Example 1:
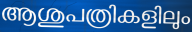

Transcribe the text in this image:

ആശുപത്രികളിലും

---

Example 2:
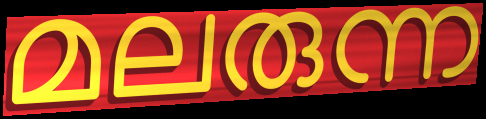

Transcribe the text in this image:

മലരുന്ന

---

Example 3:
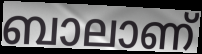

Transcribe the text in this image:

ബാലാണ്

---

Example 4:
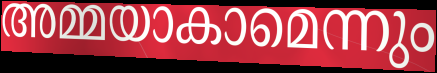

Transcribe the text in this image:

അമ്മയാകാമെന്നും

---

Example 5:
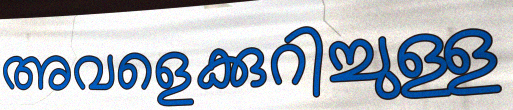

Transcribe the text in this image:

അവളെക്കുറിച്ചുള്ള